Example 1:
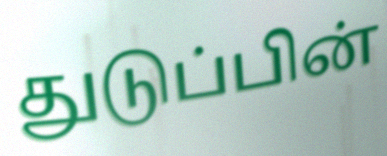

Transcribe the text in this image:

துடுப்பின்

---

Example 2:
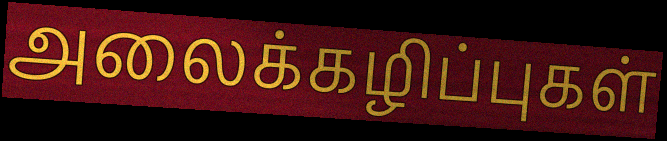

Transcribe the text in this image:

அலைக்கழிப்புகள்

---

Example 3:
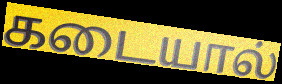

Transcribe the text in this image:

கடையால்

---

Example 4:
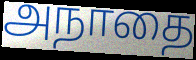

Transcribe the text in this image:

அநாதை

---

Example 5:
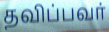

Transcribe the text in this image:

தவிப்பவர்